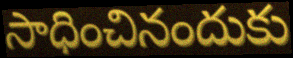
సాధించినందుకు